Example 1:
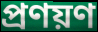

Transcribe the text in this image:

প্রণয়ণ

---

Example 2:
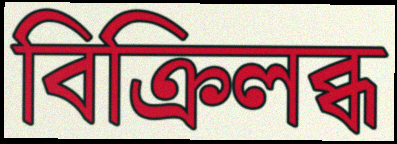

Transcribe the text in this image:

বিক্রিলব্ধ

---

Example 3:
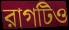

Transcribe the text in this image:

রাগটিও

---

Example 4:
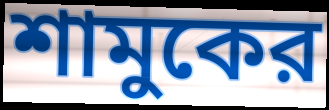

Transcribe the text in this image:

শামুকের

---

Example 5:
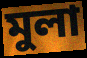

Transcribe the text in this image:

মুলা